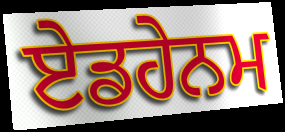
ਏਡਹੇਨਮ